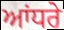
ਆਂਧਰੇ